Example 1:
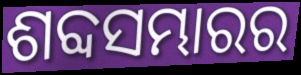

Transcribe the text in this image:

ଶବ୍ଦସମ୍ଭାରର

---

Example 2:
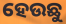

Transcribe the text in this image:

ହେଉଛୁ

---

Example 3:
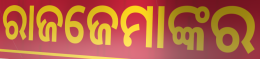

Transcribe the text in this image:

ରାଜଜେମାଙ୍କର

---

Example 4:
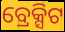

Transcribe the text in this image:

ବ୍ରେକ୍ସିଟ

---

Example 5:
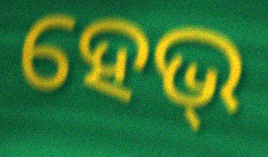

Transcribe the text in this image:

ହେଭ୍